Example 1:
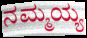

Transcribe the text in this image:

ನಮ್ಮಯ್ಯ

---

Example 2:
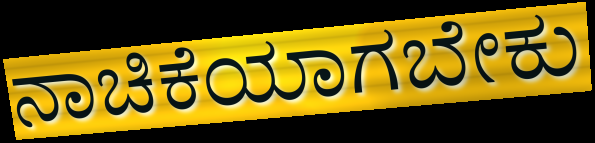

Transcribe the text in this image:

ನಾಚಿಕೆಯಾಗಬೇಕು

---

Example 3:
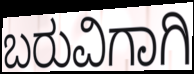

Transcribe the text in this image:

ಬರುವಿಗಾಗಿ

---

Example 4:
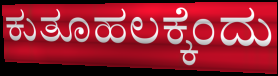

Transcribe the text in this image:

ಕುತೂಹಲಕ್ಕೆಂದು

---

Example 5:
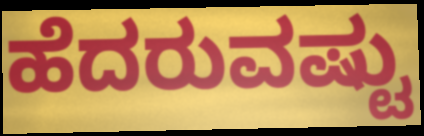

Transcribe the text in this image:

ಹೆದರುವಷ್ಟು